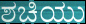
ಶಚಿಯು